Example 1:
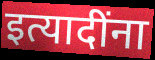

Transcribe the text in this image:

इत्यादींना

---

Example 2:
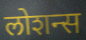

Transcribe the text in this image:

लोशन्स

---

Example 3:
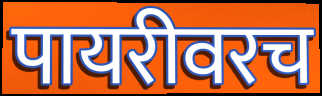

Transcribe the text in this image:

पायरीवरच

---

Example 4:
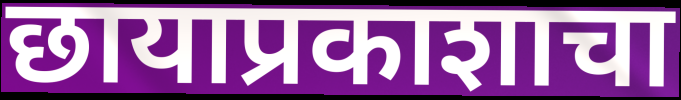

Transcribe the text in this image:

छायाप्रकाशाचा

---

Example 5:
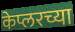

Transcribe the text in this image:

केप्लरच्या